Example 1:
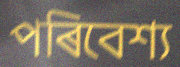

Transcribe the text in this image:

পৰিবেশ্য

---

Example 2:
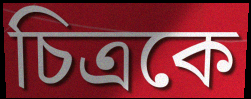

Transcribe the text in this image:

চিত্ৰকে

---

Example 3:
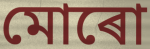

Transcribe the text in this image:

মোৰো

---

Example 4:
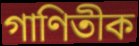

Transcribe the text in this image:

গাণিতীক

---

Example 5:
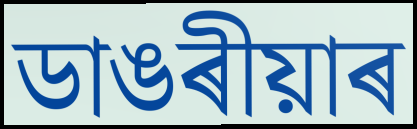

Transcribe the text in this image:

ডাঙৰীয়াৰ